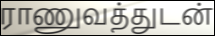
ராணுவத்துடன்